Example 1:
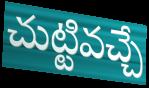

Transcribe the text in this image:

చుట్టివచ్చే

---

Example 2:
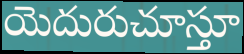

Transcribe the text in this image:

యెదురుచూస్తూ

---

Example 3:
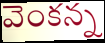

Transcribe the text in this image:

వెంకన్న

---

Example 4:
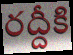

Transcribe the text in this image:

రద్దీకి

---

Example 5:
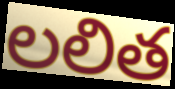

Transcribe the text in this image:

లలిత